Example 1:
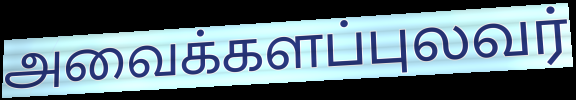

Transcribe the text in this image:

அவைக்களப்புலவர்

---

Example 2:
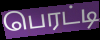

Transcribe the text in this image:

பெரட்டி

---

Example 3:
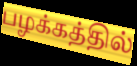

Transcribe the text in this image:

பழக்கத்தில்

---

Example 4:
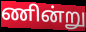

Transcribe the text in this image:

ணின்று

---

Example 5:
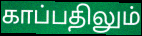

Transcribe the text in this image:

காப்பதிலும்